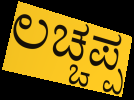
ಲಚ್ಚಪ್ಪ